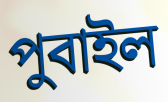
পুবাইল